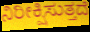
ನಿರೀಕ್ಷಿಸುತ್ತದೆ